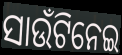
ସାଉଁଟିନେଇ